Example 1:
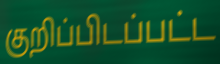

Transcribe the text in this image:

குறிப்பிடப்பட்ட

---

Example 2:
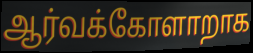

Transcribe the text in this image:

ஆர்வக்கோளாறாக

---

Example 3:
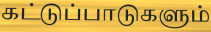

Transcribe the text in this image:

கட்டுப்பாடுகளும்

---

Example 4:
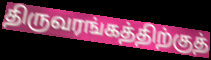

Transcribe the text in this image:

திருவரங்கத்திற்குத்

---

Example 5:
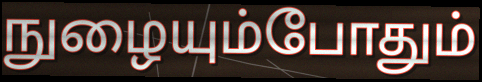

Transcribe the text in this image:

நுழையும்போதும்